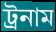
ট্রনাম